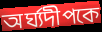
অর্ঘ্যদীপকে